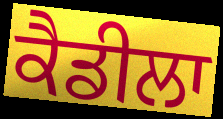
ਕੈਡੀਲਾ